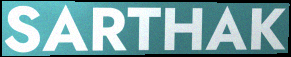
SARTHAK